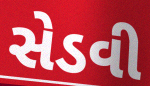
સેડવી